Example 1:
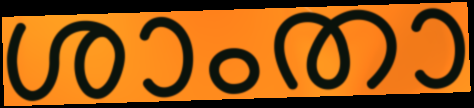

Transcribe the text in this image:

ശാംതാ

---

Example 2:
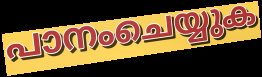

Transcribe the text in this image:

പാനംചെയ്യുക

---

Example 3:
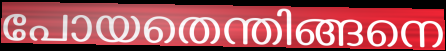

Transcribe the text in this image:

പോയതെന്തിങ്ങനെ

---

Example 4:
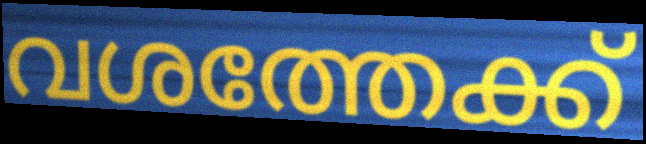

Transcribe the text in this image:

വശത്തേക്ക്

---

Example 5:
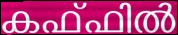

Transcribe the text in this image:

കഫ്ഫിൽ